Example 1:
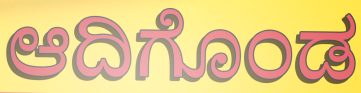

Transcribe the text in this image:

ಆದಿಗೊಂಡ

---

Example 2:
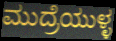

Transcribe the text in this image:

ಮುದ್ರೆಯುಳ್ಳ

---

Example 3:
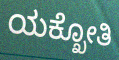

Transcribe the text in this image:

ಯಕ್ಖೋತಿ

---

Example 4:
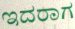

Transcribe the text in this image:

ಇದರಾಗ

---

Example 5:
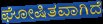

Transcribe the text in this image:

ಘೋಷಿತವಾಗಿದೆ